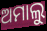
ଅମାଲୁ